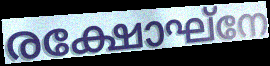
രക്ഷോഘ്നേ